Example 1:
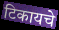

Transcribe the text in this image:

टिकायचे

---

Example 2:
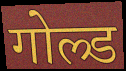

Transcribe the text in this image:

गोल्ड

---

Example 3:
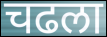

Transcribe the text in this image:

चढला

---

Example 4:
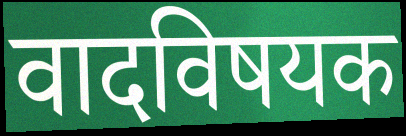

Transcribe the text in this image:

वादविषयक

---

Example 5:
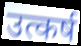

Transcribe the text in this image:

उत्कर्ष